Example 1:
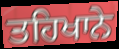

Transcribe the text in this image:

ਤਹਿਖਾਨੇ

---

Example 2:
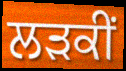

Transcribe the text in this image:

ਲੜਕੀਂ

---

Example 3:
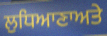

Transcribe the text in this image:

ਲੁਧਿਆਣਾਅਤੇ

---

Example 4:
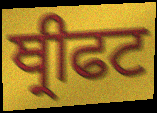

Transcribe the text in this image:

ਥ੍ਰੀਫਟ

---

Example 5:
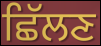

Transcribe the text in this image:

ਛਿੱਲਣ